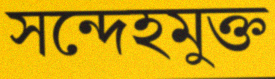
সন্দেহমুক্ত